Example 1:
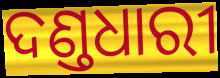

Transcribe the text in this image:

ଦଣ୍ଡଧାରୀ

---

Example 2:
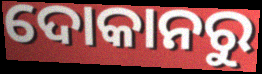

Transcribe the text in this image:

ଦୋକାନରୁ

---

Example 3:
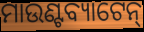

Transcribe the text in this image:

ମାଉଣ୍ଟବ୍ୟାଟେନ୍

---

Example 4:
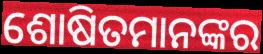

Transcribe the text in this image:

ଶୋଷିତମାନଙ୍କର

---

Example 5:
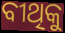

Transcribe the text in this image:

ବୀଥିକୁ